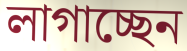
লাগাচ্ছেন